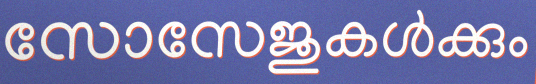
സോസേജുകൾക്കും